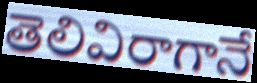
తెలివిరాగానే